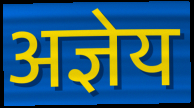
अज्ञेय